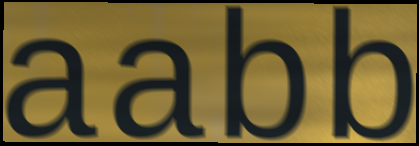
aabb